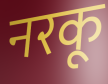
नरकू